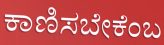
ಕಾಣಿಸಬೇಕೆಂಬ